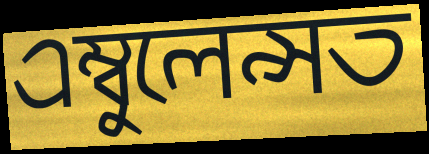
এম্বুলেন্সত